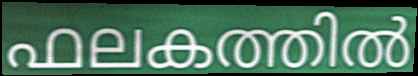
ഫലകത്തിൽ